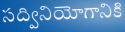
సద్వినియోగానికి